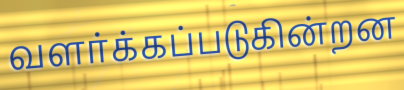
வளர்க்கப்படுகின்றன